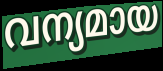
വന്യമായ